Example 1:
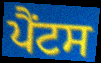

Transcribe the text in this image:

ਪੈਂਟਸ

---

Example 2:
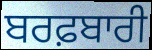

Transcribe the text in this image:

ਬਰਫ਼ਬਾਰੀ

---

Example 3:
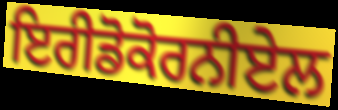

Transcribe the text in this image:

ਇਰੀਡੋਕੋਰਨੀਏਲ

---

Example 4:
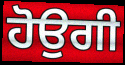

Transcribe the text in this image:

ਹੋਉਗੀ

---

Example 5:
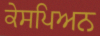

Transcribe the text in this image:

ਕੇਸਪਿਅਨ